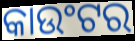
କାଉଂଟର